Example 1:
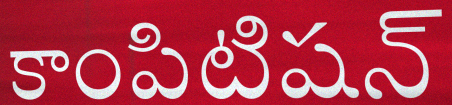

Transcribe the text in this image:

కాంపిటిషన్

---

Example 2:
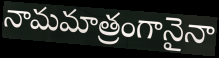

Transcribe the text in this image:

నామమాత్రంగానైనా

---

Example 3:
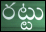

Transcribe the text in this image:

రట్టు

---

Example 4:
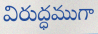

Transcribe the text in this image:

విరుద్ధముగా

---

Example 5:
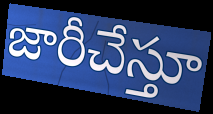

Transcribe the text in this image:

జారీచేస్తూ